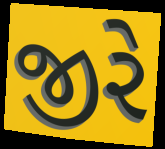
જીરે